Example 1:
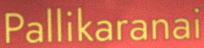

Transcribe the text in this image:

Pallikaranai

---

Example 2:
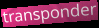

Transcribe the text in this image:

transponder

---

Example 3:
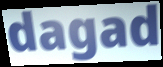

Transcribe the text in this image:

dagad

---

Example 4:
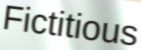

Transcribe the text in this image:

Fictitious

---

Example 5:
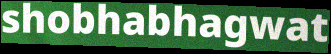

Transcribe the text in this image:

shobhabhagwat